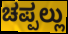
ಚಪ್ಪಲ್ಲು